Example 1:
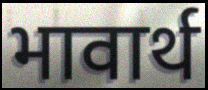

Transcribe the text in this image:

भावार्थ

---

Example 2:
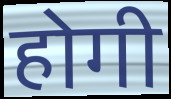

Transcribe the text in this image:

होगी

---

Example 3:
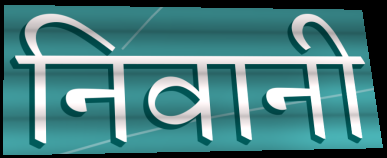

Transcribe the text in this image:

निवानी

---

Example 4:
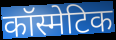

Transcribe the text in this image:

कॉस्मेटिक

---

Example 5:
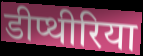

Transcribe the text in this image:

डीप्थीरिया